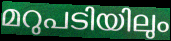
മറുപടിയിലും